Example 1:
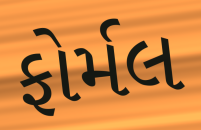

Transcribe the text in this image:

ફોર્મલ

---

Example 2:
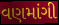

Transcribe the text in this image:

વણમાંગી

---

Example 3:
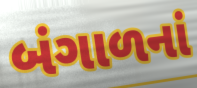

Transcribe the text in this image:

બંગાળનાં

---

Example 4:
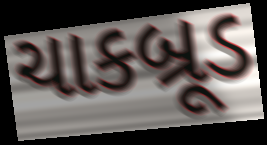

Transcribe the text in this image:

ચાકબ્રૂડ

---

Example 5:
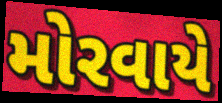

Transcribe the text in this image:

મોરવાયે